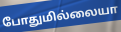
போதுமில்லையா